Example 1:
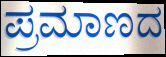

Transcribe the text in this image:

ಪ್ರಮಾಣದ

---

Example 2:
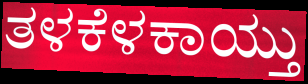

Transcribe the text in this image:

ತಳಕೆಳಕಾಯ್ತು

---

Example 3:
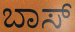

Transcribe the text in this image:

ಬಾಸ್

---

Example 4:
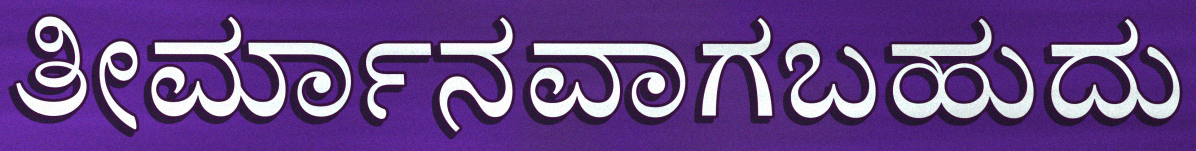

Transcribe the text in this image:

ತೀರ್ಮಾನವಾಗಬಹುದು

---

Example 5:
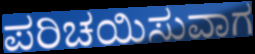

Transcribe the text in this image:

ಪರಿಚಯಿಸುವಾಗ